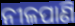
ନୀଳପାଣି